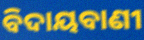
ବିଦାୟବାଣୀ